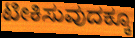
ಟೀಕಿಸುವುದಕ್ಕೂ